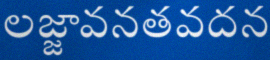
లజ్జావనతవదన